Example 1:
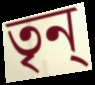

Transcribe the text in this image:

তৃন্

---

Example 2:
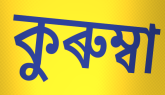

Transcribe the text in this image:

কুৰুম্বা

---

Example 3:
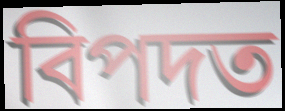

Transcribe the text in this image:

বিপদত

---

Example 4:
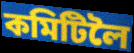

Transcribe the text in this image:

কমিটিলৈ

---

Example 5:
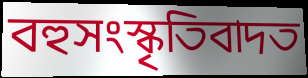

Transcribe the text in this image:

বহুসংস্কৃতিবাদত